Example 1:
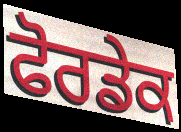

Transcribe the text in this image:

ਫੋਰਡੇਕ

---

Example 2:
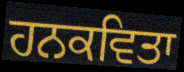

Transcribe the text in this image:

ਹਨਕਵਿਤਾ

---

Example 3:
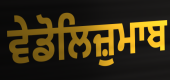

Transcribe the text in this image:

ਵੇਡੋਲਿਜ਼ੁਮਾਬ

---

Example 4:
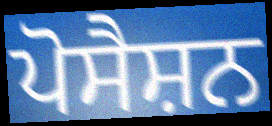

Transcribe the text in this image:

ਪੋਸੈਸ਼ਨ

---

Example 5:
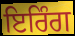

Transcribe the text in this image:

ਇਰਿੰਗ